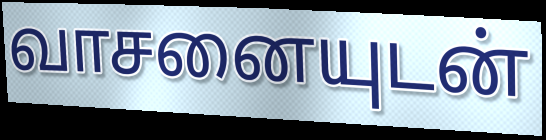
வாசனையுடன்